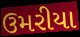
ઉમરીયા